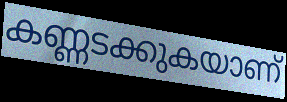
കണ്ണടക്കുകയാണ്